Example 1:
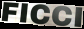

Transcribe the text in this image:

FICCI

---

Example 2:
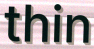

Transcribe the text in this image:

thin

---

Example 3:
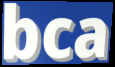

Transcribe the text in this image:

bca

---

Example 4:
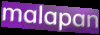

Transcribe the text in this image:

malapan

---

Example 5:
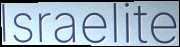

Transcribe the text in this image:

Israelite